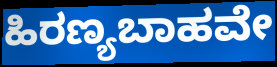
ಹಿರಣ್ಯಬಾಹವೇ